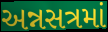
અન્નસત્રમાં